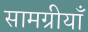
सामग्रीयाँ